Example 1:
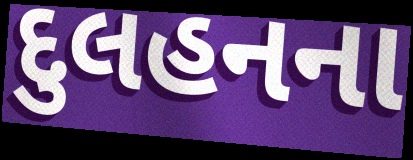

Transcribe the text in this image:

દુલહનના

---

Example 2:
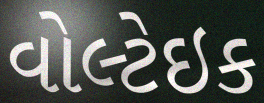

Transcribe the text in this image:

વોલ્ટેઇક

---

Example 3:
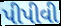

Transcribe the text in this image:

પીપીવી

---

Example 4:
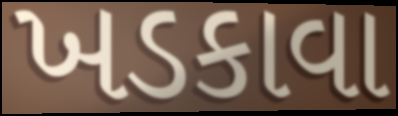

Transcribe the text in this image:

ખડકાવા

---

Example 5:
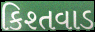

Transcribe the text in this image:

કિશ્તવાડ